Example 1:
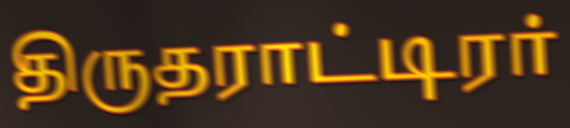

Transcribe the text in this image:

திருதராட்டிரர்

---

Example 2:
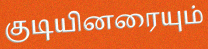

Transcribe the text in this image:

குடியினரையும்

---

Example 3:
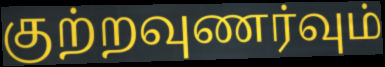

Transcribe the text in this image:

குற்றவுணர்வும்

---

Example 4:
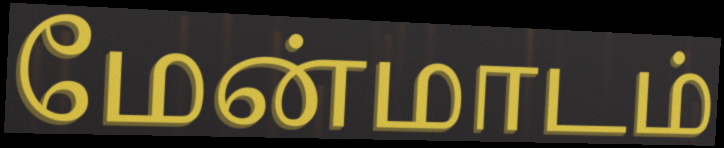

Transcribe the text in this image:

மேன்மாடம்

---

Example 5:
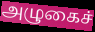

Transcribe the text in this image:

அழுகைச்